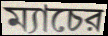
ম্যাচের